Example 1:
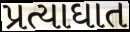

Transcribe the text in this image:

પ્રત્યાઘાત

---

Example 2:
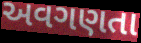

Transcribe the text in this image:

અવગણતા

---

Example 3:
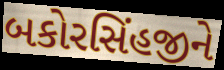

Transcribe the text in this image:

બકોરસિંહજીને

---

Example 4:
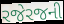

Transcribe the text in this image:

રજેરજની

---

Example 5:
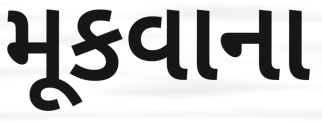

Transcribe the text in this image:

મૂકવાના